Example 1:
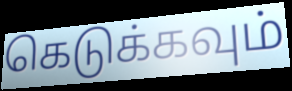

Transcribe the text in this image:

கெடுக்கவும்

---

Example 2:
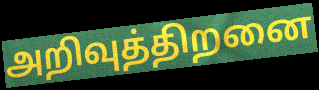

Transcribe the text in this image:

அறிவுத்திறனை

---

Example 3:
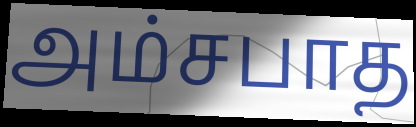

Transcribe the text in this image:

அம்சபாத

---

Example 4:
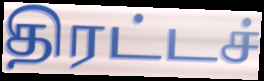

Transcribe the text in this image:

திரட்டச்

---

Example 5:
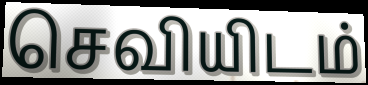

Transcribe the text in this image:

செவியிடம்